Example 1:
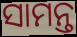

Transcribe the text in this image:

ସାମନ୍ତ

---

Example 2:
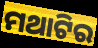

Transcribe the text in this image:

ମଥାଟିର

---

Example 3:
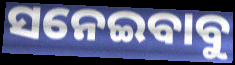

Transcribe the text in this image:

ସନେଇବାବୁ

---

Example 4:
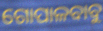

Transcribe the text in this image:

ଗୋପାଳବାବୁ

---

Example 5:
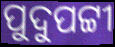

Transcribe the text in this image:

ପୁଦୁପଟ୍ଟୀ